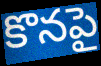
కొనపై